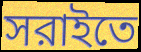
সরাইতে